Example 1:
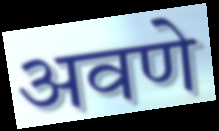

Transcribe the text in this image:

अवणे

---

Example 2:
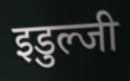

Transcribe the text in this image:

इडुल्जी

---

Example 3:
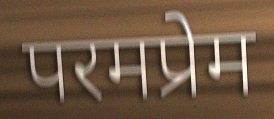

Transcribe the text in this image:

परमप्रेम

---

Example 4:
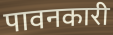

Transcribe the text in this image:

पावनकारी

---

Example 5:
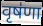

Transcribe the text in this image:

वृष॑णा